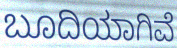
ಬೂದಿಯಾಗಿವೆ